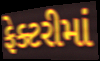
ફેક્ટરીમાં